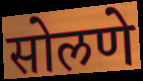
सोलणे